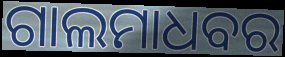
ଗାଲମାଧବର